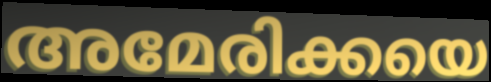
അമേരിക്കയെ